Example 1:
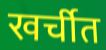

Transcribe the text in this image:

खर्चीत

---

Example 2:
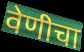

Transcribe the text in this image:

वेणीचा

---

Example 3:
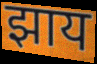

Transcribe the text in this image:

झाय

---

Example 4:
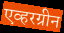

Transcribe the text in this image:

एव्हरग्रीन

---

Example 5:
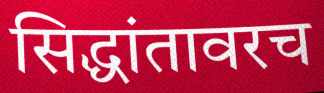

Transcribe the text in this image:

सिद्धांतावरच